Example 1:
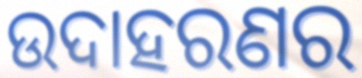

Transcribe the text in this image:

ଉଦାହରଣର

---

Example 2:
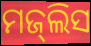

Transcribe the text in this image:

ମଜ୍‌ଲିସ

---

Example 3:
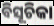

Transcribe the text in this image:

ବିସୂଚିକା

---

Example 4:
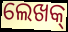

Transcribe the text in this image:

ଲେଖକ୍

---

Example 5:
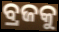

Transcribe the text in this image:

ବ୍ରଜକୁ